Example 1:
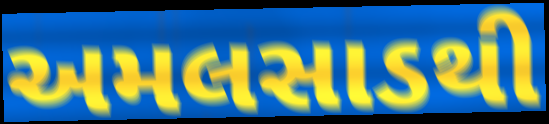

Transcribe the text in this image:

અમલસાડથી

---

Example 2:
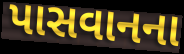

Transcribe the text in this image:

પાસવાનના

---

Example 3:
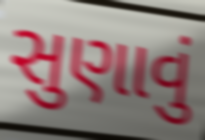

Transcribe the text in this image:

સુણાવું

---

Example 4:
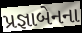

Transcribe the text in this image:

પ્રજ્ઞાબેનના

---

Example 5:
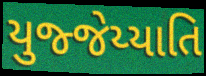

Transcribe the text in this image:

યુજ્જેય્યાતિ